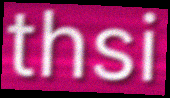
thsi